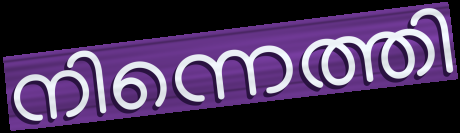
നിന്നെത്തി